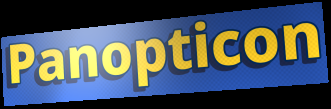
Panopticon